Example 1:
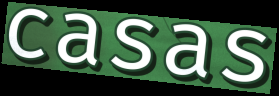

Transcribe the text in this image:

casas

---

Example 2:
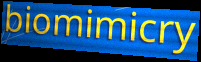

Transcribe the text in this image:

biomimicry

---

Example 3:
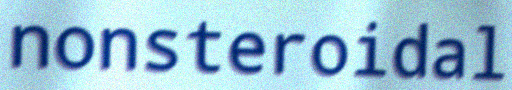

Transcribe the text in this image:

nonsteroidal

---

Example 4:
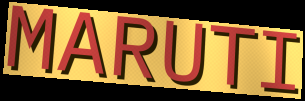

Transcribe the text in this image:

MARUTI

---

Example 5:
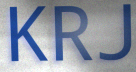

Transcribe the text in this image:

KRJ